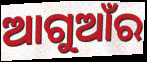
ଆଗୁଆଁର